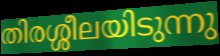
തിരശ്ശീലയിടുന്നു